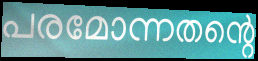
പരമോന്നതന്റെ